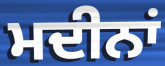
ਮਦੀਨਾਂ